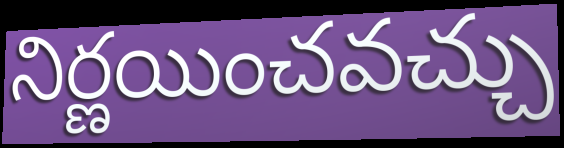
నిర్ణయించవచ్చు